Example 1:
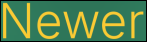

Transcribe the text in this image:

Newer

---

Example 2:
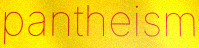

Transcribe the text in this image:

pantheism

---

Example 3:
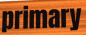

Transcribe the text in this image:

primary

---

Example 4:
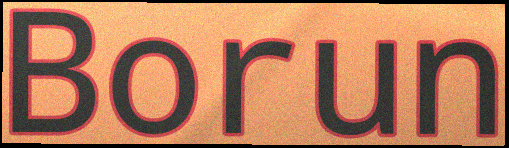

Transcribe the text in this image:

Borun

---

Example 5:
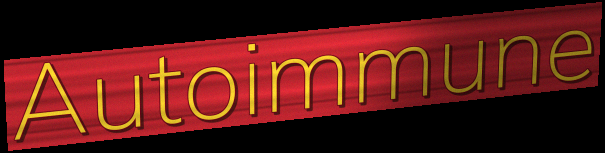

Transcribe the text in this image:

Autoimmune